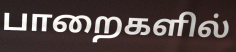
பாறைகளில்